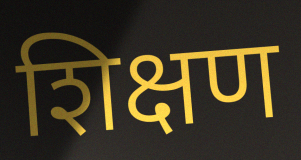
शिक्षण